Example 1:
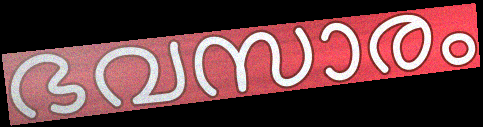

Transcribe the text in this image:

ഭവസാരം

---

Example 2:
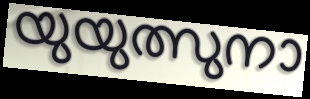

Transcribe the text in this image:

യുയുത്സുനാ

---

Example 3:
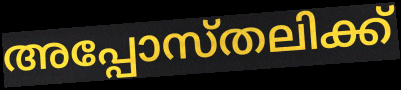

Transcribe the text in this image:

അപ്പോസ്തലിക്ക്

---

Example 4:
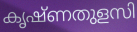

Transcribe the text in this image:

കൃഷ്ണതുളസി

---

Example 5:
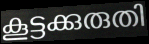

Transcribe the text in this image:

കൂട്ടക്കുരുതി